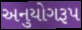
અનુયોગરૂપ